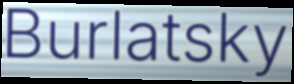
Burlatsky